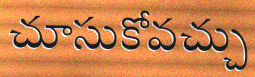
చూసుకోవచ్చు